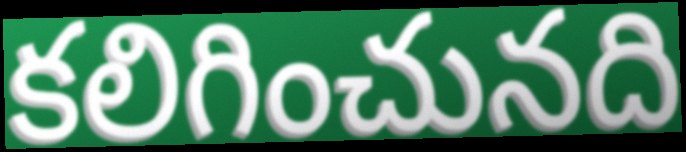
కలిగించునది